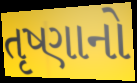
તૃષ્ણાનો